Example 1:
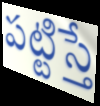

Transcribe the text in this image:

పట్టిస్తే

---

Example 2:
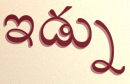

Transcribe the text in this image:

ఇడ్ను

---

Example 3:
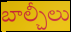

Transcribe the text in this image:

బాల్చీలు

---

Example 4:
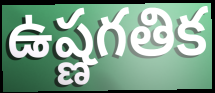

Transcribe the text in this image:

ఉష్ణగతిక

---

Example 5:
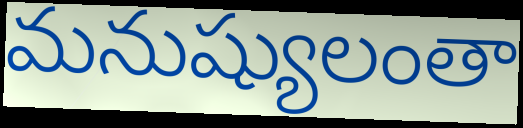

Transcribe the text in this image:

మనుష్యులంతా